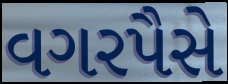
વગરપૈસે